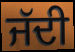
ਜੱਦੀ